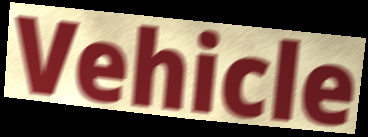
Vehicle